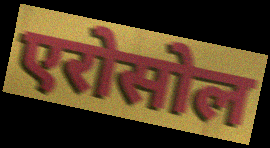
एरोसोल